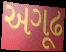
અગૂઢ